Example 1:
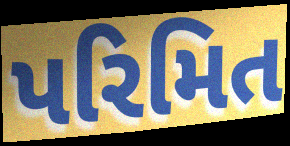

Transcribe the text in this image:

પરિમિત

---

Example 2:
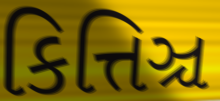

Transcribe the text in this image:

કિત્તિઞ્ચ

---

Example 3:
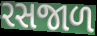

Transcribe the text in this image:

રસજાળ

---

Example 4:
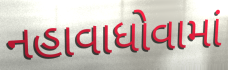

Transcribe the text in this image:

નહાવાધોવામાં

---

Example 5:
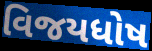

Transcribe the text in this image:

વિજયધોષ